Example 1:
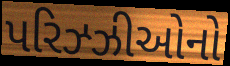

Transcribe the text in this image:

પરિઝ્ઝીઓનો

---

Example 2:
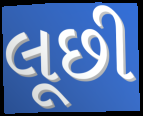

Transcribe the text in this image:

લૂછી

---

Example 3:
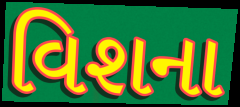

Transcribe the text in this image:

વિશના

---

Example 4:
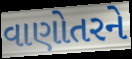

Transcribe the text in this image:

વાણોતરને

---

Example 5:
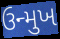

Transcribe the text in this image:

ઉન્મુખ